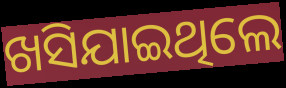
ଖସିଯାଇଥିଲେ